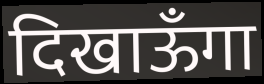
दिखाऊँगा